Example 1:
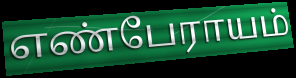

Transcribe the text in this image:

எண்பேராயம்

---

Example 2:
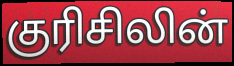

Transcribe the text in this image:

குரிசிலின்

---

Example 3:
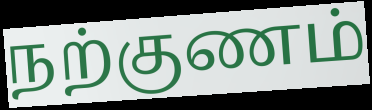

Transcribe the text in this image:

நற்குணம்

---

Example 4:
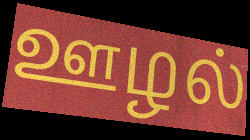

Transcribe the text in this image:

ஊழல்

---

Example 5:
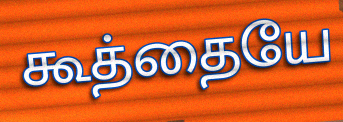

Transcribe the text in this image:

கூத்தையே